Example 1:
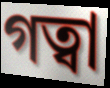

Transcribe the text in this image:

গত্বা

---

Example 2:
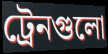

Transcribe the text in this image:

ট্রেনগুলো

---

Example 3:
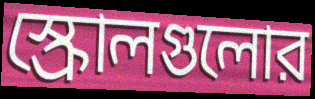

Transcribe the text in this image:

স্ক্রোলগুলোর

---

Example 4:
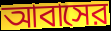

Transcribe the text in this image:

আবাসের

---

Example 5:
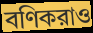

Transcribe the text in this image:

বণিকরাও